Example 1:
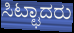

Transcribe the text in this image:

ಸಿಟ್ಟಾದರು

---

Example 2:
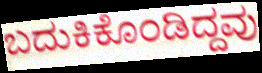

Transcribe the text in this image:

ಬದುಕಿಕೊಂಡಿದ್ದವು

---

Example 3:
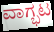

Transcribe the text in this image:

ವಾಗ್ಭಟ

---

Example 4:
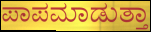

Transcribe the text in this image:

ಪಾಪಮಾಡುತ್ತಾ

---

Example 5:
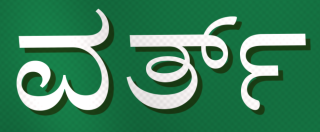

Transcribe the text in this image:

ವರ್ತ್